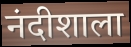
नंदीशाला